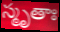
స్మృతాః